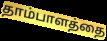
தாம்பாளத்தை